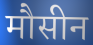
मौसीन